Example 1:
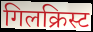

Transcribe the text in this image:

गिलक्रिस्ट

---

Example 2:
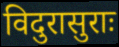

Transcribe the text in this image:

विदुरासुराः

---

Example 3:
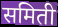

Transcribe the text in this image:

समिती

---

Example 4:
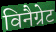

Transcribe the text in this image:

विनैग्रेट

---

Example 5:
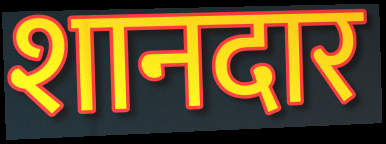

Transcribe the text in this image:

शानदार